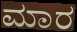
ಮಾರ